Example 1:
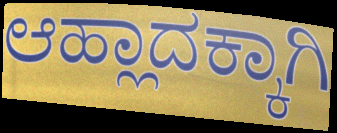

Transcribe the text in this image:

ಆಹ್ಲಾದಕ್ಕಾಗಿ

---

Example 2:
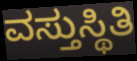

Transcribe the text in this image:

ವಸ್ತುಸ್ಥಿತಿ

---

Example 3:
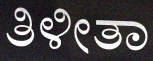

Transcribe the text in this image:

ತಿಳೀತಾ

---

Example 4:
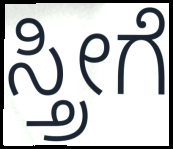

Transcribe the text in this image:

ಸ್ತ್ರೀಗೆ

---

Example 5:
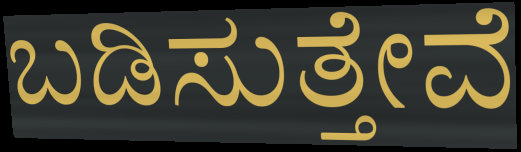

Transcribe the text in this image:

ಬಡಿಸುತ್ತೇವೆ